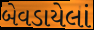
બેવડાયેલાં